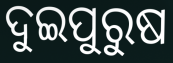
ଦୁଇପୁରୁଷ